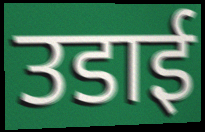
उडाई